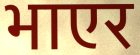
भाएर